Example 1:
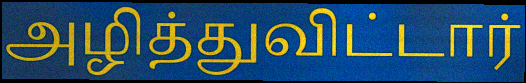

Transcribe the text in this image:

அழித்துவிட்டார்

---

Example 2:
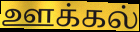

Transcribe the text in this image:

ஊக்கல்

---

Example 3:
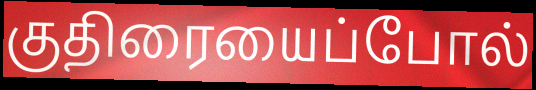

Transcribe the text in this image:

குதிரையைப்போல்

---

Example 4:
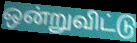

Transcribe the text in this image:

ஒன்றுவிட்டு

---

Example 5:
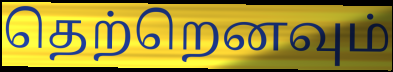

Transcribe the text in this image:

தெற்றெனவும்